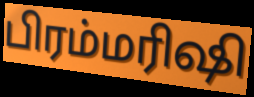
பிரம்மரிஷி